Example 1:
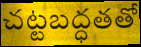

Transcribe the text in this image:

చట్టబద్ధతతో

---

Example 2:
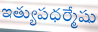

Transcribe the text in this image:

ఇత్యుపధర్మేషు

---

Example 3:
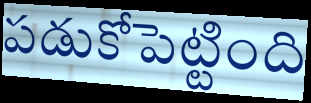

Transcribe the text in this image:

పడుకోపెట్టింది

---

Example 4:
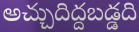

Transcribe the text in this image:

అచ్చుదిద్దబడ్డది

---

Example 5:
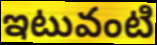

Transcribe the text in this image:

ఇటువంటి